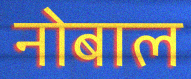
नोबाल